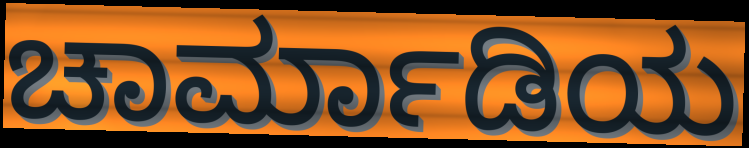
ಚಾರ್ಮಾಡಿಯ